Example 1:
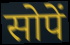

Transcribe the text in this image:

सोपें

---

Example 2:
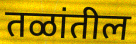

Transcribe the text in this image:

तळांतील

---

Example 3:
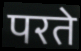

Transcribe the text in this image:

परते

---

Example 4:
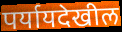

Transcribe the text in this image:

पर्यायदेखील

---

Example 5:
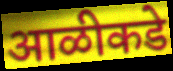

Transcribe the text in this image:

आळीकडे